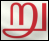
று